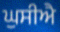
ਘੁਸੀਐ